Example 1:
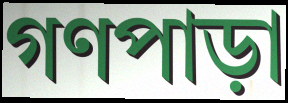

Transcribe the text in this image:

গণপাড়া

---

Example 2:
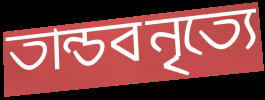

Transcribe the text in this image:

তান্ডবনৃত্যে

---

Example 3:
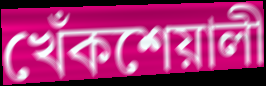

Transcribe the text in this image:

খেঁকশেয়ালী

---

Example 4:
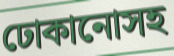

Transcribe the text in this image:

ঢোকানোসহ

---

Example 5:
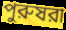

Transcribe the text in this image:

পুরুষরা